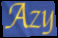
Azy